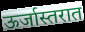
ऊर्जास्तरात